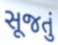
સૂજતું